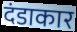
दंडाकार